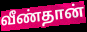
வீண்தான்